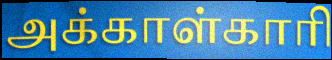
அக்காள்காரி